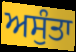
ਅਸੁੰਤਾ